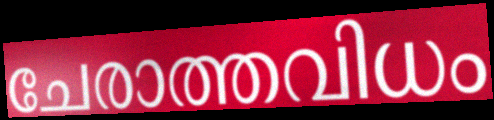
ചേരാത്തവിധം